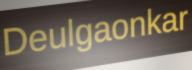
Deulgaonkar